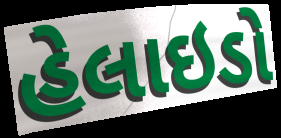
હેલાઇડો